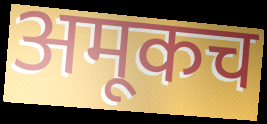
अमूकच